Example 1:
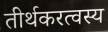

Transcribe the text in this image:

तीर्थकरत्वस्य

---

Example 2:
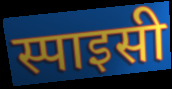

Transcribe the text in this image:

स्पाइसी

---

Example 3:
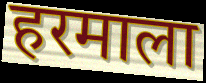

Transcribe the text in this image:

हरमाला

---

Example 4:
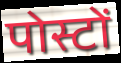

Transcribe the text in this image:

पोस्टों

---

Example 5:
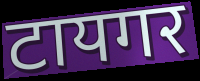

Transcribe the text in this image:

टायगर